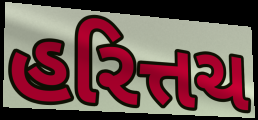
હરિત્તચ